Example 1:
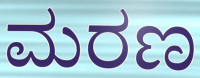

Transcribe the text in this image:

ಮರಣ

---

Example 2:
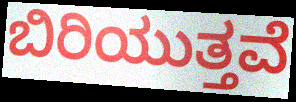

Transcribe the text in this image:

ಬಿರಿಯುತ್ತವೆ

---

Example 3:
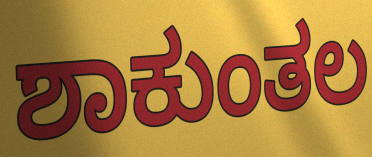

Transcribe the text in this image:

ಶಾಕುಂತಲ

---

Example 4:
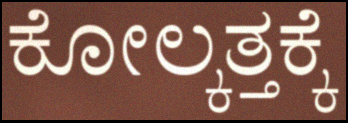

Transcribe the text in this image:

ಕೋಲ್ಕತ್ತಕ್ಕೆ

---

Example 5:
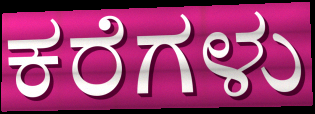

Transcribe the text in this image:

ಕರೆಗಳು